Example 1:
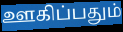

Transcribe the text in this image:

ஊகிப்பதும்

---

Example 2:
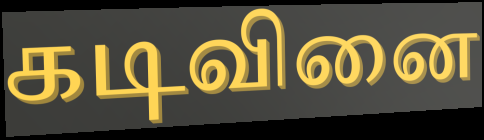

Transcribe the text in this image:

கடிவினை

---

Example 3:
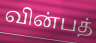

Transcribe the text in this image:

வின்பத்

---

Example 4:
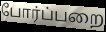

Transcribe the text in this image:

போர்ப்பறை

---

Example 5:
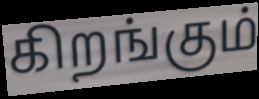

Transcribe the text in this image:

கிறங்கும்